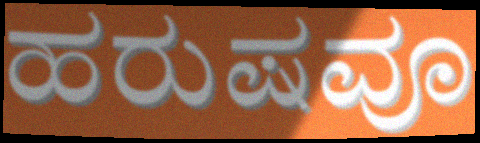
ಹರುಷವೂ